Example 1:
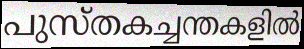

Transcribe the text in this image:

പുസ്തകച്ചന്തകളിൽ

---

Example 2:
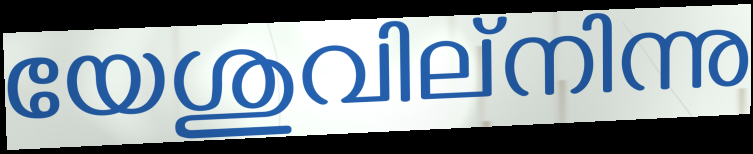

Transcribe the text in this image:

യേശുവില്നിന്നു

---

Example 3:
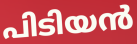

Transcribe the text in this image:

പിടിയൻ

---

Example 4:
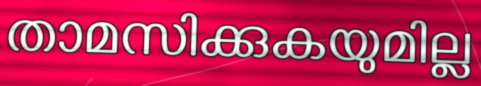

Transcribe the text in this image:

താമസിക്കുകയുമില്ല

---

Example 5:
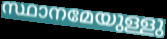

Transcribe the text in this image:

സ്ഥാനമേയുള്ളു